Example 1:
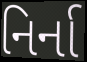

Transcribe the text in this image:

નિર્ના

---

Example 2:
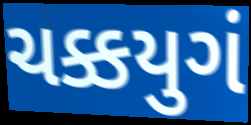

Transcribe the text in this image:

ચક્કયુગં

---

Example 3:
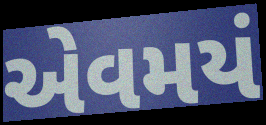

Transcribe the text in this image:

એવમયં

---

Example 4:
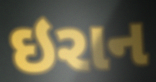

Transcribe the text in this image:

ઇરાન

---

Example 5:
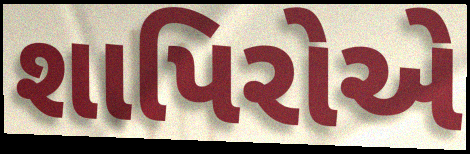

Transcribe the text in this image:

શાપિરોએ